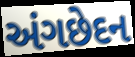
અંગછેદન